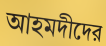
আহমদীদের